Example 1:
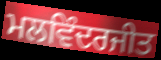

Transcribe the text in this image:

ਮਲਵਿੰਦਰਜੀਤ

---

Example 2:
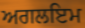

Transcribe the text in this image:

ਅਗਲਇਮ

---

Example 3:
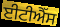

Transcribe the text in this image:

ਈਟੀਐੱਸ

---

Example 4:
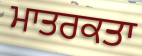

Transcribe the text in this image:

ਮਾਤਰਕਤਾ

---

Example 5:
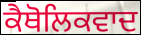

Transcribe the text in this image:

ਕੈਥੋਲਿਕਵਾਦ